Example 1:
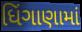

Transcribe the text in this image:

ધિંગાણામાં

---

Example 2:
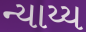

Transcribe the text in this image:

ન્યાય્ય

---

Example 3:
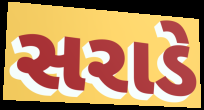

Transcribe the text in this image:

સરાડે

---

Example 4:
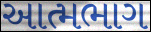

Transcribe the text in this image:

આત્મભાગ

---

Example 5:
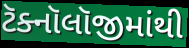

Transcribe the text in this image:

ટૅક્નૉલૉજીમાંથી